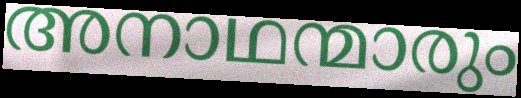
അനാഥന്മാരും